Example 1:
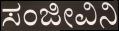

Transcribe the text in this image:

ಸಂಜೀವಿನಿ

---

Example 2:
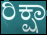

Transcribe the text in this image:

ರಿಕ್ಷಾ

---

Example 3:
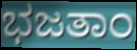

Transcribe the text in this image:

ಭಜತಾಂ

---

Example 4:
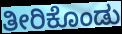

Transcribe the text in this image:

ತೀರಿಕೊಂಡು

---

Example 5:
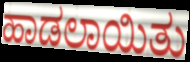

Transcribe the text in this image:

ಹಾಡಲಾಯಿತು